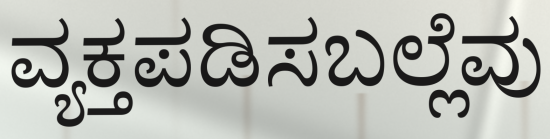
ವ್ಯಕ್ತಪಡಿಸಬಲ್ಲೆವು